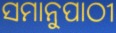
ସମାନୁପାଠୀ